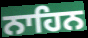
ਨਾਹਿਨ